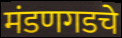
मंडणगडचे